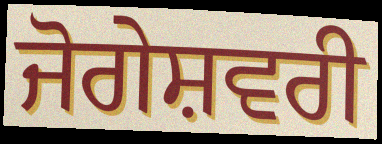
ਜੋਗੇਸ਼ਵਰੀ